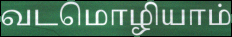
வடமொழியாம்